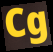
Cg